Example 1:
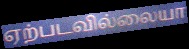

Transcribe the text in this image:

ஏற்படவில்லையா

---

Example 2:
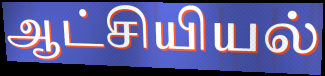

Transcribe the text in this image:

ஆட்சியியல்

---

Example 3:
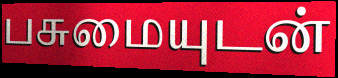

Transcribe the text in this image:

பசுமையுடன்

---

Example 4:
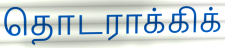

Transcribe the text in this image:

தொடராக்கிக்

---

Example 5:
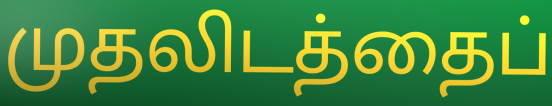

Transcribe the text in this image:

முதலிடத்தைப்